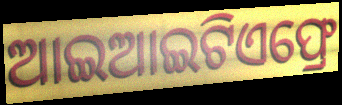
ଆଇଆଇଟିଏଫ୍ରେ